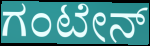
ಗಂಟೇನ್